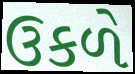
ઉકળે